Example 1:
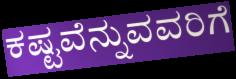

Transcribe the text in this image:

ಕಷ್ಟವೆನ್ನುವವರಿಗೆ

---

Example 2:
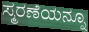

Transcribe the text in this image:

ಸ್ಮರಣೆಯನ್ನೂ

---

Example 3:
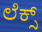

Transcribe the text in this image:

ಲೆಕ್ಸ್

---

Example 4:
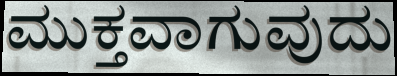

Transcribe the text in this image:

ಮುಕ್ತವಾಗುವುದು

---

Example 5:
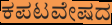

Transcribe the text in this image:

ಕಪಟವೇಷದ